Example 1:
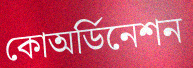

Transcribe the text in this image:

কোঅর্ডিনেশন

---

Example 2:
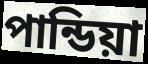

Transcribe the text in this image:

পান্ডিয়া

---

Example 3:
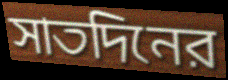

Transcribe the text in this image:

সাতদিনের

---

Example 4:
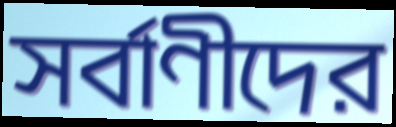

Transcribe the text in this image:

সর্বাণীদের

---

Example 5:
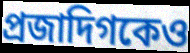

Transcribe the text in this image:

প্রজাদিগকেও